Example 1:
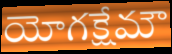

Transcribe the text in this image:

యోగక్షేమౌ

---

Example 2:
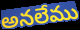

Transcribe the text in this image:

అనలేము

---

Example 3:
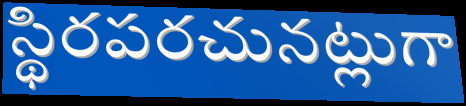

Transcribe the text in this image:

స్థిరపరచునట్లుగా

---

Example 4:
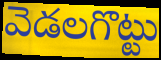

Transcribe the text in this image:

వెడలగొట్టు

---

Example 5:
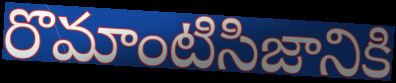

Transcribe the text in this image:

రొమాంటిసిజానికి